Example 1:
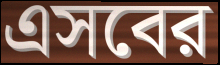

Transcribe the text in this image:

এসবের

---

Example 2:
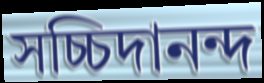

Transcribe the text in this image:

সচ্চিদানন্দ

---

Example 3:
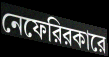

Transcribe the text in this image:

নেফেরিরকারে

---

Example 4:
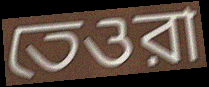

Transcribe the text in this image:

তেওরা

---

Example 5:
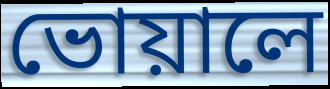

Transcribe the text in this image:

ভোয়ালে